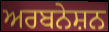
ਅਰਬਨੇਸ਼ਨ